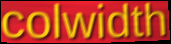
colwidth